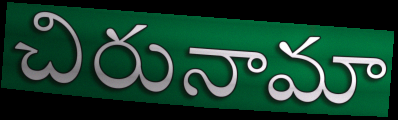
చిరునామా